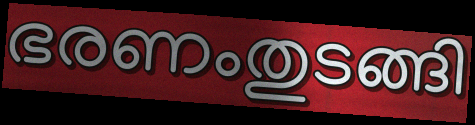
ഭരണംതുടങ്ങി